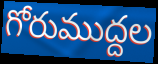
గోరుముద్దల